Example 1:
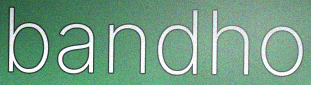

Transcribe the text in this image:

bandho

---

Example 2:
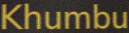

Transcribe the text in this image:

Khumbu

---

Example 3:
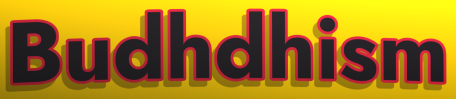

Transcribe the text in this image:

Budhdhism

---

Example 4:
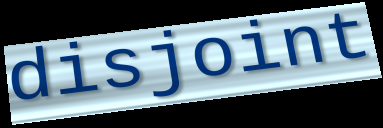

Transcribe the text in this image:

disjoint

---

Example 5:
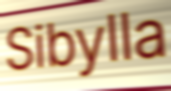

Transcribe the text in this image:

Sibylla